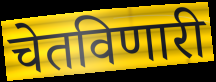
चेतविणारी